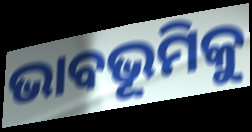
ଭାବଭୂମିକୁ